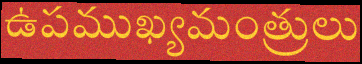
ఉపముఖ్యమంత్రులు